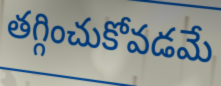
తగ్గించుకోవడమే